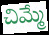
చిమ్మే